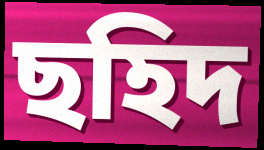
ছহিদ